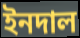
ইনদাল